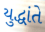
યુદ્ધાંતે